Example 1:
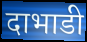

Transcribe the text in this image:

दाभाडी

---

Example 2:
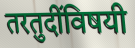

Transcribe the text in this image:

तरतुदींविषयी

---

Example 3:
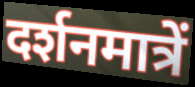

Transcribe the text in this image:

दर्शनमात्रें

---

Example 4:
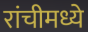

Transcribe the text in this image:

रांचीमध्ये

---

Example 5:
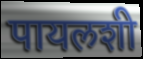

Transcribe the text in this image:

पायलशी